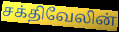
சக்திவேலின்